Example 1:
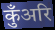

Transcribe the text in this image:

कुँअरि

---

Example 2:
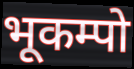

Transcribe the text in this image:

भूकम्पो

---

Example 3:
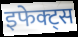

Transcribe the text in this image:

इफेक्‍ट्स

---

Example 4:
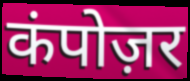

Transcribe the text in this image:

कंपोज़र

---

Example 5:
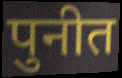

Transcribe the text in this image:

पुनीत